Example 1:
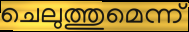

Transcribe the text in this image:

ചെലുത്തുമെന്ന്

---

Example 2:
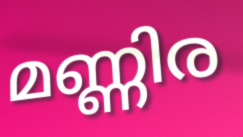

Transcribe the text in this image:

മണ്ണിര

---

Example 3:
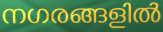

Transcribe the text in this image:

നഗരങ്ങളിൽ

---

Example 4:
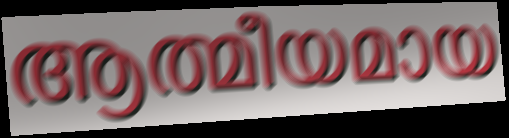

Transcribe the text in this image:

ആത്മീയമായ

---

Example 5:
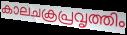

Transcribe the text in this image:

കാലചക്രപ്രവൃത്തിം